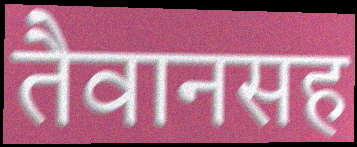
तैवानसह